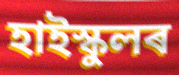
হাইস্কুলৰ